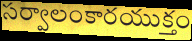
సర్వాలంకారయుక్తం